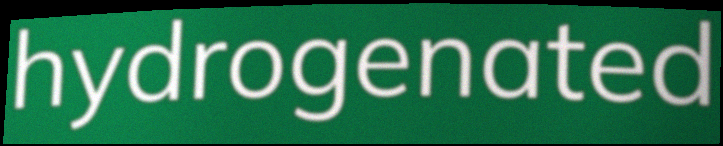
hydrogenated